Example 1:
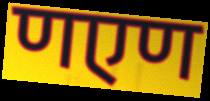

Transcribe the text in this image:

णएण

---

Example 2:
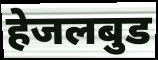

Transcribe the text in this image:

हेजलबुड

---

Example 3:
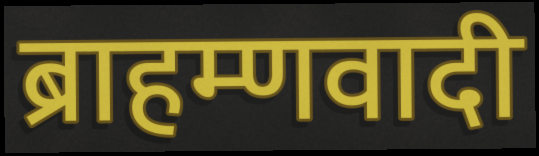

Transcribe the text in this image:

ब्राहम्णवादी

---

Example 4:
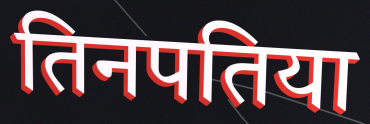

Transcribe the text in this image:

तिनपतिया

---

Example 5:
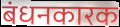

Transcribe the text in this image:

बंधनकारक